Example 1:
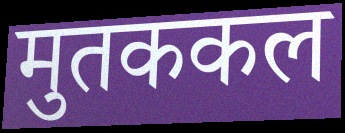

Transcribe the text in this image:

मुतककल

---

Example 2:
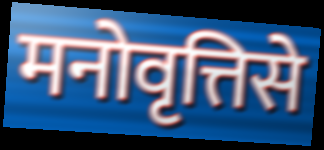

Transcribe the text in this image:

मनोवृत्तिसे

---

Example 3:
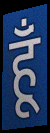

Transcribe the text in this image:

हूँं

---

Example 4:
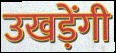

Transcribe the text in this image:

उखड़ेंगी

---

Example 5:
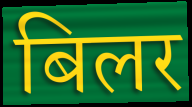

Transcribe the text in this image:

बिलर